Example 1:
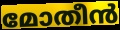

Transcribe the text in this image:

മോതീൻ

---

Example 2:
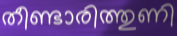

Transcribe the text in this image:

തീണ്ടാരിത്തുണി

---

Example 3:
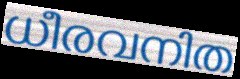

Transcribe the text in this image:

ധീരവനിത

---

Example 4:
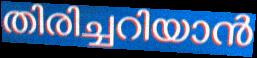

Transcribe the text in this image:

തിരിച്ചറിയാൻ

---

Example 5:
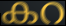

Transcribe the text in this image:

കറ